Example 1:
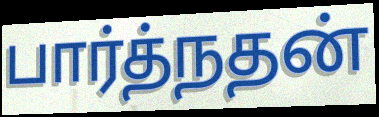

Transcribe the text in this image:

பார்த்நதன்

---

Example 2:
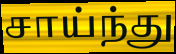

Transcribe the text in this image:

சாய்ந்து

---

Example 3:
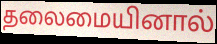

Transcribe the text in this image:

தலைமையினால்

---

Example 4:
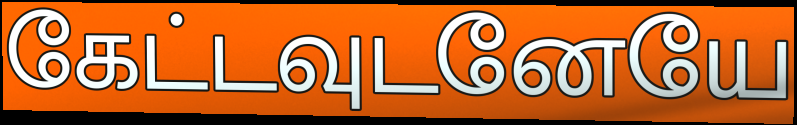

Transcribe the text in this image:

கேட்டவுடனேயே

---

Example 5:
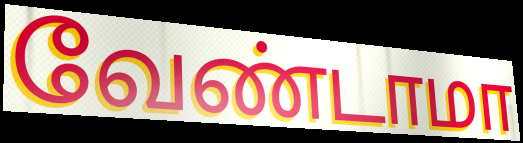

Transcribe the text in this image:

வேண்டாமா